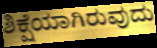
ಶಿಕ್ಷೆಯಾಗಿರುವುದು